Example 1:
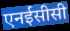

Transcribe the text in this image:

एनईसीसी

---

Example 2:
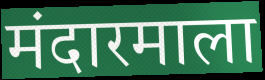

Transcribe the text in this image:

मंदारमाला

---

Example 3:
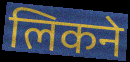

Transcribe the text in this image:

लिकने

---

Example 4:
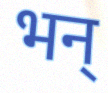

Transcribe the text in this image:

भन्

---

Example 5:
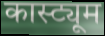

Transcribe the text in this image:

कास्ट्यूम